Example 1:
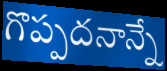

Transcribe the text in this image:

గొప్పదనాన్నే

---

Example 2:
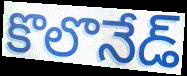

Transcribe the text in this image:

కొలొనేడ్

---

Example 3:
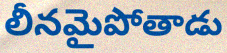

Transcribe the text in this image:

లీనమైపోతాడు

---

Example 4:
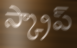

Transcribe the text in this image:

స్క్రాప్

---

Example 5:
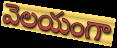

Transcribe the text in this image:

వెలయంగా